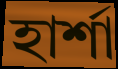
হার্শা